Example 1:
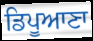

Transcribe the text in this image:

ਡਿਪੂਆਣਾ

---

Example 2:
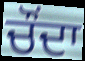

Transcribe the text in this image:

ਚੌਂਦਾ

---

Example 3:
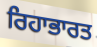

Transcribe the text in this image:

ਰਿਹਾਭਾਰਤ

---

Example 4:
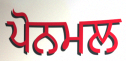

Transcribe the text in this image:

ਪੋਨਮਲ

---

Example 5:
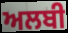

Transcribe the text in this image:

ਅਲਬੀ